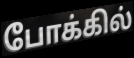
போக்கில்